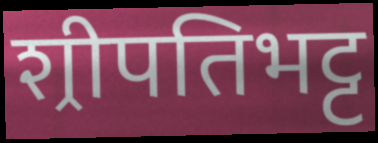
श्रीपतिभट्ट